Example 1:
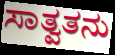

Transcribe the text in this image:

ಸಾತ್ವತನು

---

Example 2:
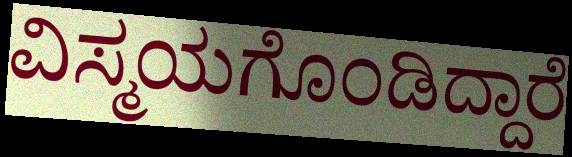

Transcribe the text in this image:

ವಿಸ್ಮಯಗೊಂಡಿದ್ದಾರೆ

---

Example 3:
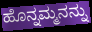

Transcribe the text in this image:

ಹೊನ್ನಮ್ಮನನ್ನು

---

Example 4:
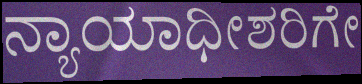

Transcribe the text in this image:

ನ್ಯಾಯಾಧೀಶರಿಗೇ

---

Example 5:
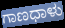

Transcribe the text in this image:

ಗಾಣಧಾಳು